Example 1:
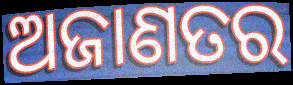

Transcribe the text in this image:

ଅଜାଣତର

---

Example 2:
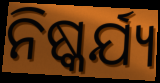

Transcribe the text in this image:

ନିଷ୍କର୍ଯ୍ୟ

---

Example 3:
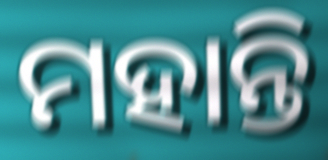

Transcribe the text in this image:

ମହାନ୍ତି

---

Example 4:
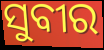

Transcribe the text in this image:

ସୁବୀର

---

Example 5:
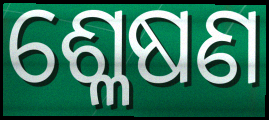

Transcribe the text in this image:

ଶ୍ଳେଷଣ